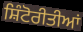
ਸ਼ਿੰਟੋਰੀਤੀਆਂ